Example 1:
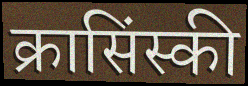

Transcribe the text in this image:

क्रासिंस्की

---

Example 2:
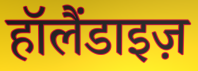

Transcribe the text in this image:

हॉलैंडाइज़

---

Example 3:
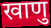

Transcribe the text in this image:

खाणु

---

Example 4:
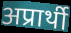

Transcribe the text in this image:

अप्रार्थी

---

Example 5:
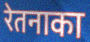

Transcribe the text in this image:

रेतनाका